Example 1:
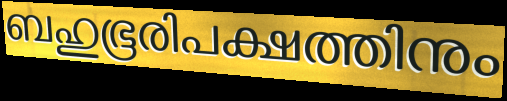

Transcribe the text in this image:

ബഹുഭൂരിപക്ഷത്തിനും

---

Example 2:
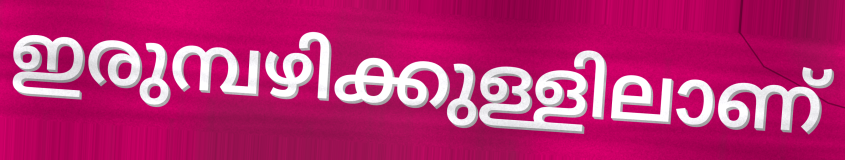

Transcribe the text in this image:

ഇരുമ്പഴിക്കുള്ളിലാണ്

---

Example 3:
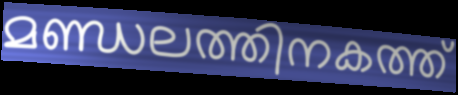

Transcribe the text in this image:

മണ്ഡലത്തിനകത്ത്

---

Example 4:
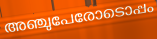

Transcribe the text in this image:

അഞ്ചുപേരോടൊപ്പം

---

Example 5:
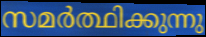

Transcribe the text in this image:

സമർത്ഥിക്കുന്നു